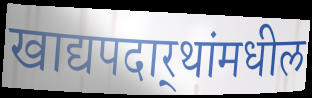
खाद्यपदार्थांमधील